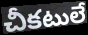
చీకటులే